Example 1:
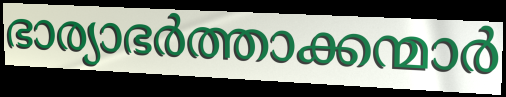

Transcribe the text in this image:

ഭാര്യാഭർത്താക്കന്മാർ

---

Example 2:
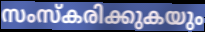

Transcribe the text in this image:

സംസ്കരിക്കുകയും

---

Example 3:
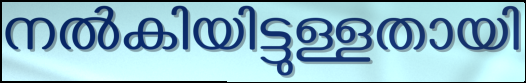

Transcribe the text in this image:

നൽകിയിട്ടുള്ളതായി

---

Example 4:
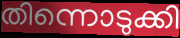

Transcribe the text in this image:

തിന്നൊടുക്കി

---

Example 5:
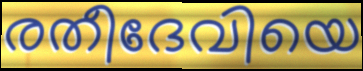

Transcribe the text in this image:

രതീദേവിയെ